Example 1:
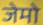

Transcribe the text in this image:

जेमो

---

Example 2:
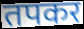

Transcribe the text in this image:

तपकर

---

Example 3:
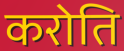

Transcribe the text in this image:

करोति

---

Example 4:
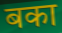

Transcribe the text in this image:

बका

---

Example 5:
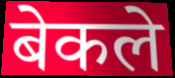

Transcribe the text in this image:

बेकले